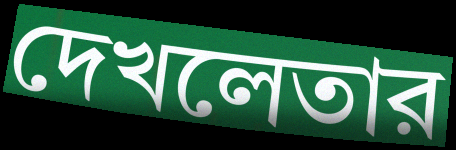
দেখলেতার